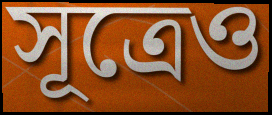
সূত্রেও